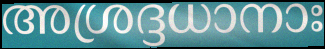
അശ്രദ്ദധാനാഃ